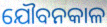
ଯୌବନକାଳ